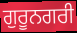
ਗੁਰੂਨਗਰੀ